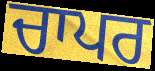
ਚਾਪਰ